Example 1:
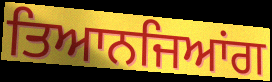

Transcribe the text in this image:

ਤਿਆਨਜਿਆਂਗ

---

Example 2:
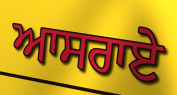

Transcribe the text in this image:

ਆਸਰਾਏ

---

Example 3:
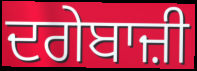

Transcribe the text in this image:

ਦਗੇਬਾਜ਼ੀ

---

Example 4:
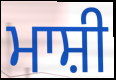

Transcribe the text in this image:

ਮਾਸ਼ੀ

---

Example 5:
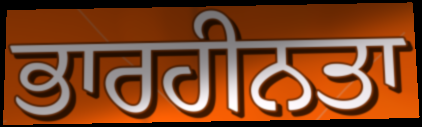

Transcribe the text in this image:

ਭਾਰਹੀਨਤਾ